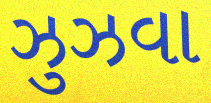
ઝુઝવા